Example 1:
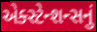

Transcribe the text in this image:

એક્સ્ટેન્શન્સનું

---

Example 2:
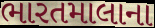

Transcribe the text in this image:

ભારતમાલાના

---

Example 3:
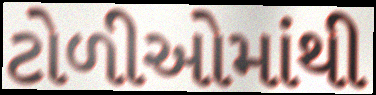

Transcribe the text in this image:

ટોળીઓમાંથી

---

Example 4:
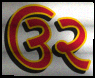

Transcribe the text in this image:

ઉર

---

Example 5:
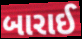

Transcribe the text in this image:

બારાઈ